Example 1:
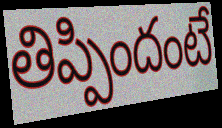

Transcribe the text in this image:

తిప్పిందంటే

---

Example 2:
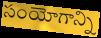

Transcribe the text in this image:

సంయోగాన్ని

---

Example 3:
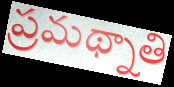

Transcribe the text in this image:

ప్రమథ్నాతి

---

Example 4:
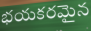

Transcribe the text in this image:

భయకరమైన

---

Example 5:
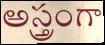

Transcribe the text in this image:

అస్త్రంగా